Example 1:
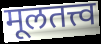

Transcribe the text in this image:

मूलतत्त्व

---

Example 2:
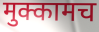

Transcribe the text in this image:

मुक्कामच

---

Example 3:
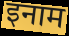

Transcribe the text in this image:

इनाम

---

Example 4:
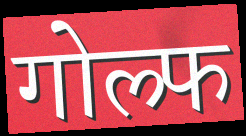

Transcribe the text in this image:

गोल्फ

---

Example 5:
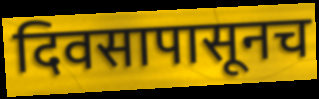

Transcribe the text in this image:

दिवसापासूनच